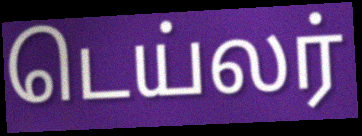
டெய்லர்